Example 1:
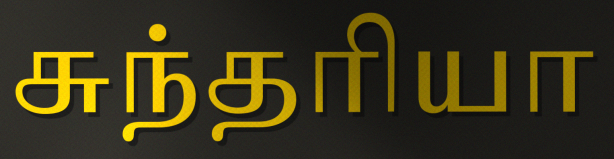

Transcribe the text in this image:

சுந்தரியா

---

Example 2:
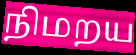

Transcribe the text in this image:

நிமறய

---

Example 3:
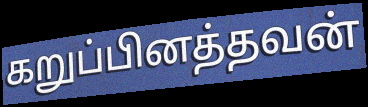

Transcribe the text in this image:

கறுப்பினத்தவன்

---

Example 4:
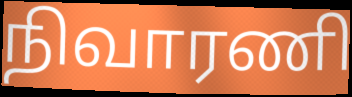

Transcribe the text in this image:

நிவாரணி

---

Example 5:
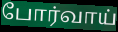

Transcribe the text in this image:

போர்வாய்